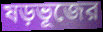
ষড়ভূজের